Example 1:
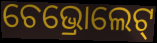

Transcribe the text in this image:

ଚେଭ୍ରୋଲେଟ୍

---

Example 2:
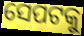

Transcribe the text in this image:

ସେପଟକୁ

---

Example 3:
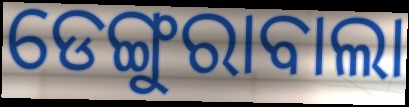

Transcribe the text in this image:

ଡେଙ୍ଗୁରାବାଲା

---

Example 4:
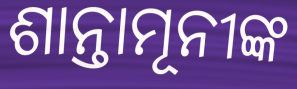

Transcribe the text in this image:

ଶାନ୍ତାମୂନୀଙ୍କ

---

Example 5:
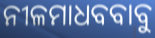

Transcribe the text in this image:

ନୀଳମାଧବବାବୁ